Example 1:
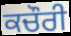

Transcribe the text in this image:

ਕਚੌਰੀ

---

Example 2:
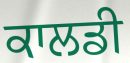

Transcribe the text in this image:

ਕਾਲਡੀ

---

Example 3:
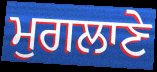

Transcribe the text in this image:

ਮੁਗਲਾਣੇ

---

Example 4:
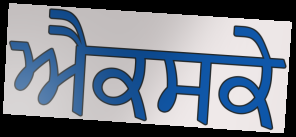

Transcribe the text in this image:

ਐਕਸਕੇ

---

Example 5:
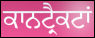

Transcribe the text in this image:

ਕਾਨਟ੍ਰੈਕਟਾਂ